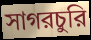
সাগরচুরি